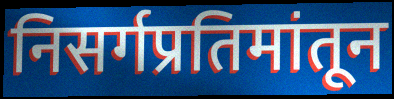
निसर्गप्रतिमांतून